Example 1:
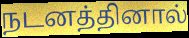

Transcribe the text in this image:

நடனத்தினால்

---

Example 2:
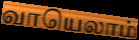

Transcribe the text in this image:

வாயெலாம்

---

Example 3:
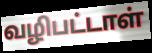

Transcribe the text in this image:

வழிபட்டாள்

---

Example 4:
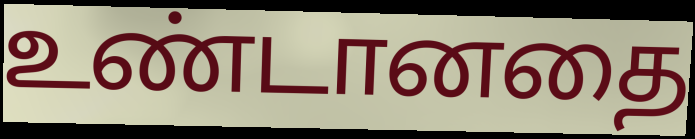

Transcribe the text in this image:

உண்டானதை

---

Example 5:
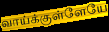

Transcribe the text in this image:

வாய்க்குள்ளேயே